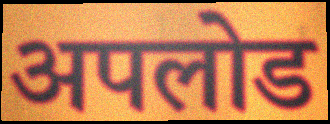
अपलोड